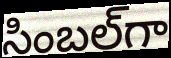
సింబల్‌గా